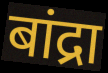
बांद्रा